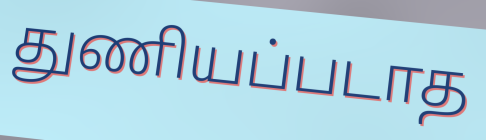
துணியப்படாத